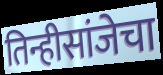
तिन्हीसांजेचा